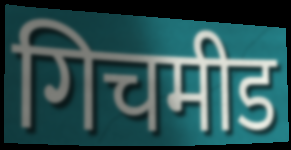
गिचमीड